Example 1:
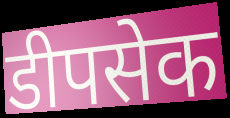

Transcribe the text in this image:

डीपसेक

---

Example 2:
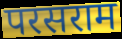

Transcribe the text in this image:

परसराम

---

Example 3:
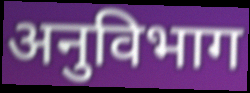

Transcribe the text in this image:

अनुविभाग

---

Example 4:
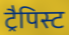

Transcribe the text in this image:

ट्रैपिस्ट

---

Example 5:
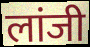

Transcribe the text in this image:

लांजी